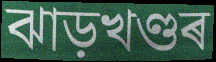
ঝাড়খণ্ডৰ